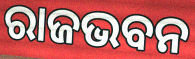
ରାଜଭବନ